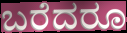
ಬರೆದರೂ